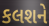
કલશને